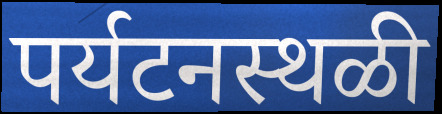
पर्यटनस्थळी